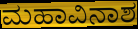
ಮಹಾವಿನಾಶ